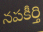
నపకీర్తి